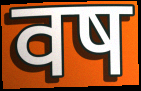
वष